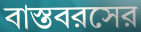
বাস্তবরসের